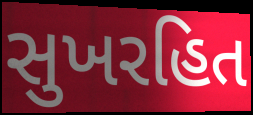
સુખરહિત